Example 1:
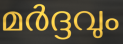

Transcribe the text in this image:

മർദ്ദവും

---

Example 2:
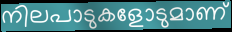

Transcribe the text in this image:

നിലപാടുകളോടുമാണ്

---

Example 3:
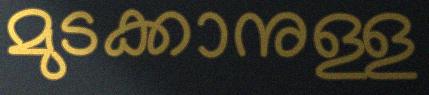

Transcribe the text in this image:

മുടക്കാനുള്ള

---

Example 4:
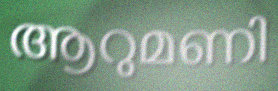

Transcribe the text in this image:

ആറുമണി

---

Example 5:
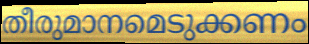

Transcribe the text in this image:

തീരുമാനമെടുക്കണം